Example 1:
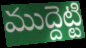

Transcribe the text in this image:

ముద్దెట్టి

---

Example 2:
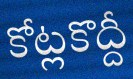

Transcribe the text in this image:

కోట్లకొద్దీ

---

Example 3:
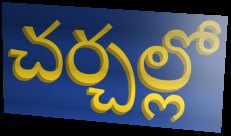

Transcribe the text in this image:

చర్చల్లో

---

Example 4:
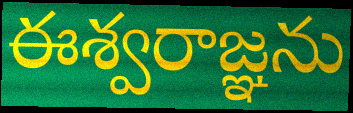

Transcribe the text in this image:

ఈశ్వరాజ్ఞను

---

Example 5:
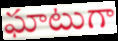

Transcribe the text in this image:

ఘాటుగా